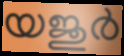
യജുർ